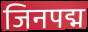
जिनपद्म